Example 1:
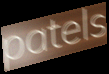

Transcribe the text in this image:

patels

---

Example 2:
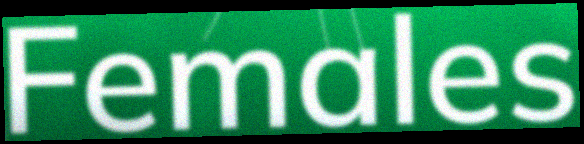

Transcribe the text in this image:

Females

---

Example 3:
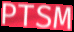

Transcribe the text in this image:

PTSM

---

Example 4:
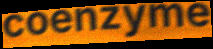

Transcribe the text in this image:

coenzyme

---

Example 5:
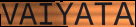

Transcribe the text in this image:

VAIYATA